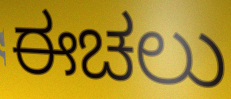
ಈಚಲು